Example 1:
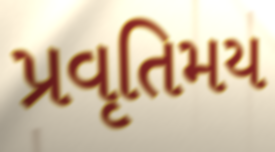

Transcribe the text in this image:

પ્રવૃતિમય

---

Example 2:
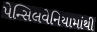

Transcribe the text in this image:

પેન્સિલવેનિયામાંથી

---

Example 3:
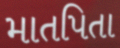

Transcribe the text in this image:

માતપિતા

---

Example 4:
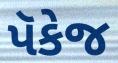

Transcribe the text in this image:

પૅકેજ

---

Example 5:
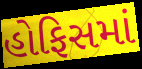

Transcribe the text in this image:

હોફિસમાં